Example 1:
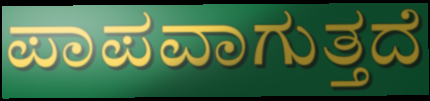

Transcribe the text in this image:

ಪಾಪವಾಗುತ್ತದೆ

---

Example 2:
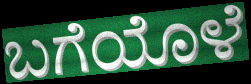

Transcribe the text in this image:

ಬಗೆಯೊಳೆ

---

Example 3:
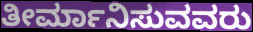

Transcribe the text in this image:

ತೀರ್ಮಾನಿಸುವವರು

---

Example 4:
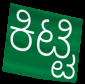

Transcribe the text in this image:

ಕಿಟ್ಟಿ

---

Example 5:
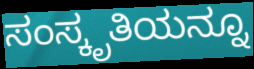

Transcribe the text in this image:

ಸಂಸ್ಕೃತಿಯನ್ನೂ